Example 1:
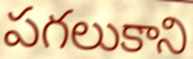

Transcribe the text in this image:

పగలుకాని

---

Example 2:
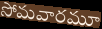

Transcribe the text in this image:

సోమవారమూ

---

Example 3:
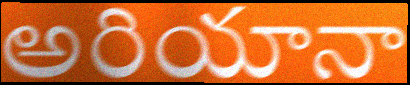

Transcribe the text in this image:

అరియానా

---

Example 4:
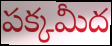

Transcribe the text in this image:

పక్కమీద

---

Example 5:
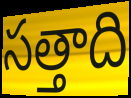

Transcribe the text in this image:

సత్తాది